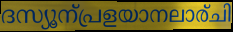
ദസ്യൂന്പ്രളയാനലാര്ചി